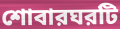
শোবারঘরটি